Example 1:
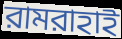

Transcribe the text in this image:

রামরাহাই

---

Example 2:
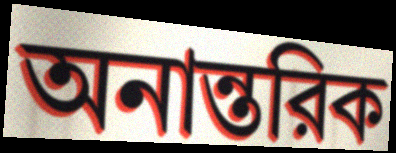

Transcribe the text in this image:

অনান্তরিক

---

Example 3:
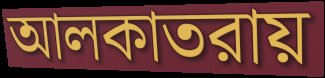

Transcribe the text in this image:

আলকাতরায়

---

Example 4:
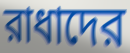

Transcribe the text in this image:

রাধাদের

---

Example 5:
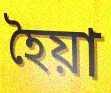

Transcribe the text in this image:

হৈয়া